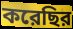
করেছির